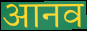
आनव